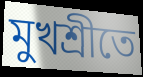
মুখশ্রীতে